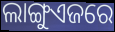
ଲାଙ୍ଗୁଏଜରେ